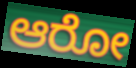
ಆರೋ